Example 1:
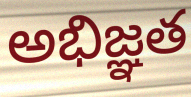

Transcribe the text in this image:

అభిజ్ఞత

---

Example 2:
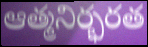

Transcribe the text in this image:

ఆత్మనిర్భరత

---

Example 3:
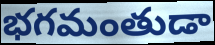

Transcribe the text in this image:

భగమంతుడా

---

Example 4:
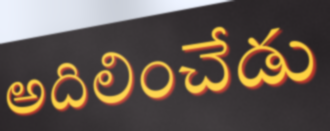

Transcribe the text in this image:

అదిలించేడు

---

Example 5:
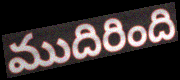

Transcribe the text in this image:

ముదిరింది